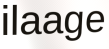
ilaage